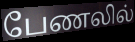
பேணலில்